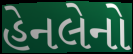
હેનલેનો